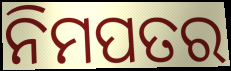
ନିମପତର